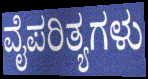
ವೈಪರಿತ್ಯಗಳು